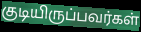
குடியிருப்பவர்கள்